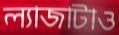
ল্যাজাটাও